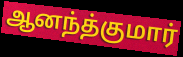
ஆனந்த்குமார்